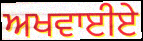
ਅਖਵਾਈਏ